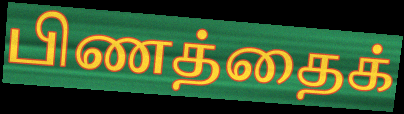
பிணத்தைக்